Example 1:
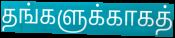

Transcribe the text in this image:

தங்களுக்காகத்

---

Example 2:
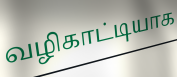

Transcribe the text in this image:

வழிகாட்டியாக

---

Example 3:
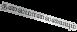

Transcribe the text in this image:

தலைமாலையையும்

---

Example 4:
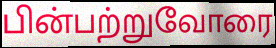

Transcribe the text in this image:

பின்பற்றுவோரை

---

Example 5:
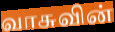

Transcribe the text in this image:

வாசுவின்